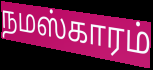
நமஸ்காரம்